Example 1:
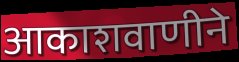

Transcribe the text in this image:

आकाशवाणीने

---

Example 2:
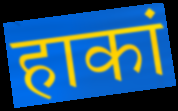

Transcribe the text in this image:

हाकां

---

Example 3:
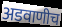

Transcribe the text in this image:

अडवाणीच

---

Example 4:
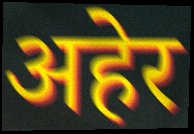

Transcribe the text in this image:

अहेर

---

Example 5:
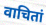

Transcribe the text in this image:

वाचितां